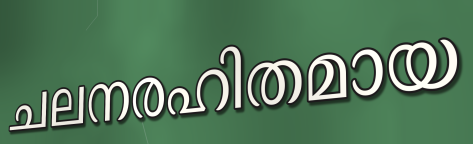
ചലനരഹിതമായ